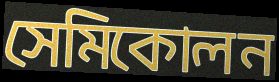
সেমিকোলন